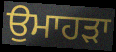
ਉਮਾਹੜਾ